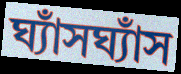
ঘ্যাঁসঘ্যাঁস